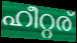
ഹീറ്റര്